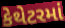
કેથેટરમાં